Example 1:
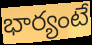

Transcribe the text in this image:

భార్యంటే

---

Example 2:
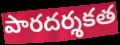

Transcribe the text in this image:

పారదర్శకత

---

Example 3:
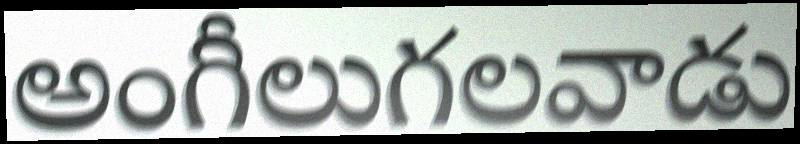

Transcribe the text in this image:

అంగీలుగలవాడు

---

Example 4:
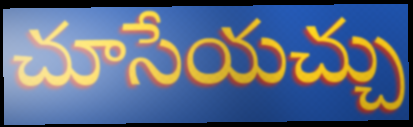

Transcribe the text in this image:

చూసేయచ్చు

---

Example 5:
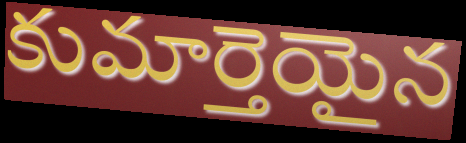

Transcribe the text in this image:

కుమార్తెయైన